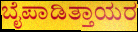
ಬೈಪಾಡಿತ್ತಾಯರ